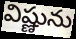
విష్ణును